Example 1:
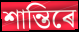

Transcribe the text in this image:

শান্তিৰে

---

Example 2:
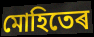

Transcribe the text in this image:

মোহিতেৰ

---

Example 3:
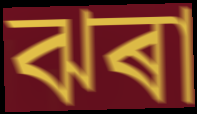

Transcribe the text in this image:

ঝৰা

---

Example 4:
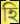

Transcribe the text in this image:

হি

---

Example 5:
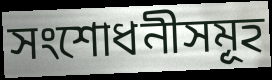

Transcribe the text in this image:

সংশোধনীসমূহ